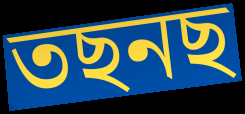
তছনছ